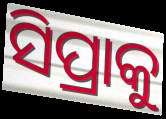
ସିପ୍ରାକୁ